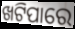
ଖଟିପାରେ